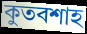
কুতবশাহ